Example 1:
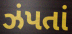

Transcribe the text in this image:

ઝંપતાં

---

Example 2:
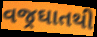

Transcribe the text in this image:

વજ્રઘાતથી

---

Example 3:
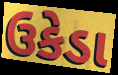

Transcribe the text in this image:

ઉકેડા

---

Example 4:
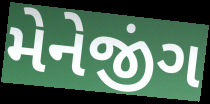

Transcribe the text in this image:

મેનેજીંગ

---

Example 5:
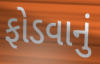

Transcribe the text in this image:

ફોડવાનું